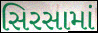
સિરસામાં